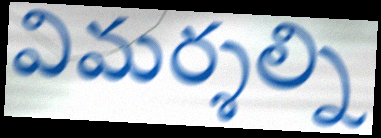
విమర్శల్ని